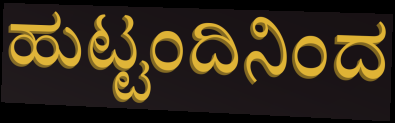
ಹುಟ್ಟಂದಿನಿಂದ